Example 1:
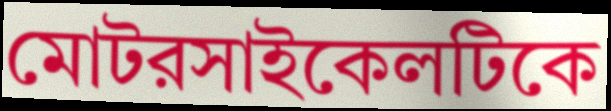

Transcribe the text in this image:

মোটরসাইকেলটিকে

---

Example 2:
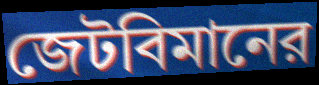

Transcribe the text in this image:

জেটবিমানের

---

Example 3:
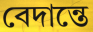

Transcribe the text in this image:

বেদান্তে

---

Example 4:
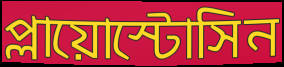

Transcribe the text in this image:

প্লায়োস্টোসিন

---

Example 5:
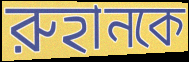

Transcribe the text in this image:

রুহানকে